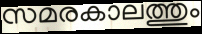
സമരകാലത്തും